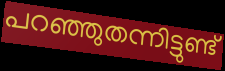
പറഞ്ഞുതന്നിട്ടുണ്ട്